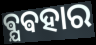
ଵ୍ଯଵହାର